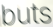
buts